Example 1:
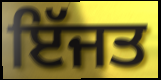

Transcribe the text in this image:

ਇੱਜਤ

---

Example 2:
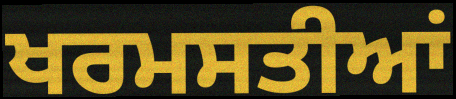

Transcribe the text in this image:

ਖਰਮਸਤੀਆਂ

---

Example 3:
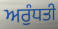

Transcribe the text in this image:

ਅਰੁੰਧਤੀ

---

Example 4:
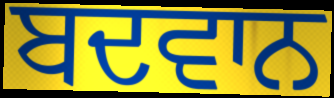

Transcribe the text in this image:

ਬਦਵਾਨ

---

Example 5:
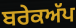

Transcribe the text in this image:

ਬਰੇਕਅੱਪ